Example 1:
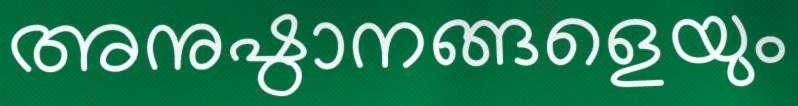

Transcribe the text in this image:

അനുഷ്ഠാനങ്ങളെയും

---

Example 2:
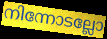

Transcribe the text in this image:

നിന്നോടല്ലോ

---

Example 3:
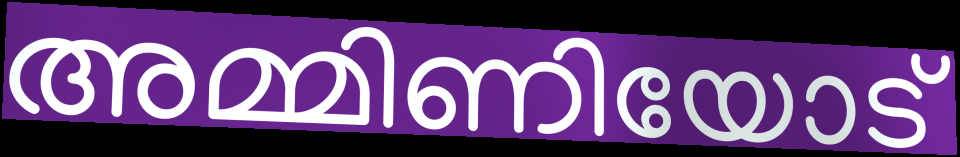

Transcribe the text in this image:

അമ്മിണിയോട്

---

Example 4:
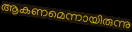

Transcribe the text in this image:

ആകണമെന്നായിരുന്നു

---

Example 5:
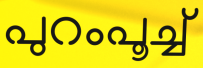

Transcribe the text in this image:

പുറംപൂച്ച്